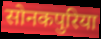
सोनकपुरिया